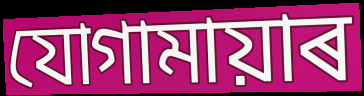
যোগামায়াৰ